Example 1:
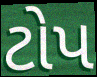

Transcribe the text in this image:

ટોપ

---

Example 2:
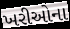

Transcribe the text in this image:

ખરીઓના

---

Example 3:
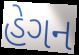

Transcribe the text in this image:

હેગન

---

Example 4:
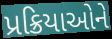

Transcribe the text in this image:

પ્રક્રિયાઓને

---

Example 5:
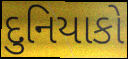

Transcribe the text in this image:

દુનિયાકો